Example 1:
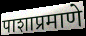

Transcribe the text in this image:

पाशाप्रमाणे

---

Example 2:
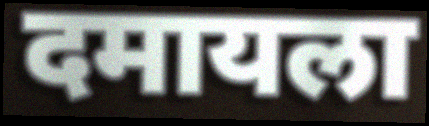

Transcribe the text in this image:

दमायला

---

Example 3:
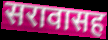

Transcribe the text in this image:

सरावासह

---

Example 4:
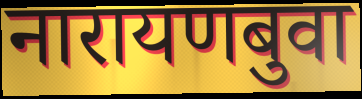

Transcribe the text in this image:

नारायणबुवा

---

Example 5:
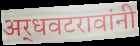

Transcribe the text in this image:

अर्धवटरावांनी